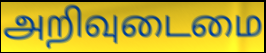
அறிவுடைமை